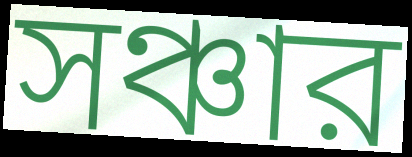
সঞ্চার